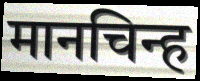
मानचिन्ह